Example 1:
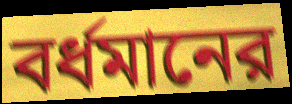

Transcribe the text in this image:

বর্ধমানের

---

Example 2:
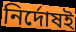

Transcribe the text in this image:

নির্দোষই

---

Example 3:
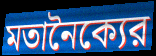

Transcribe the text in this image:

মতানৈক্যের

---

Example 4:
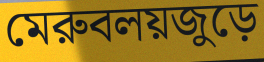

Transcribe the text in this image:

মেরুবলয়জুড়ে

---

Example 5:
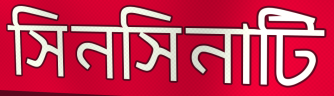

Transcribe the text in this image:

সিনসিনাটি